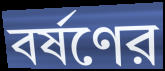
বর্ষণের